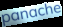
panache